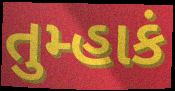
તુમ્હાકં